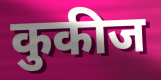
कुकीज